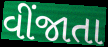
વીંજાતા